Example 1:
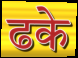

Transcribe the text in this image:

ढके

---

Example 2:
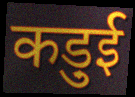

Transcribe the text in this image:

कड़ुई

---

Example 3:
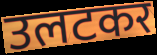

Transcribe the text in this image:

उलटकर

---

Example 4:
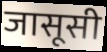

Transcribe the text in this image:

जासूसी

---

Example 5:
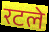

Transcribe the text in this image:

रटले